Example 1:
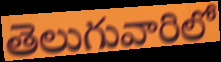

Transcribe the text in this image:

తెలుగువారిలో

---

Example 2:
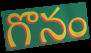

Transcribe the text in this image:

గొనం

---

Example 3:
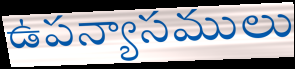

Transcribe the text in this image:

ఉపన్యాసములు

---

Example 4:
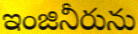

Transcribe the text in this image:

ఇంజినీరును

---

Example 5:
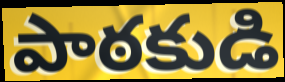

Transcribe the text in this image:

పాఠకుడి